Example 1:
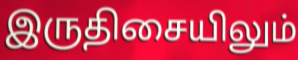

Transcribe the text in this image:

இருதிசையிலும்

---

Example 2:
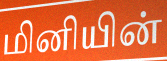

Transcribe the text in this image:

மினியின்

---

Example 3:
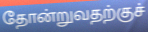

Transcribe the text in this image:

தோன்றுவதற்குச்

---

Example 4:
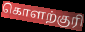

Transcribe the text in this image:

கொளற்குரி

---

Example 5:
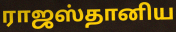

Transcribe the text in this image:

ராஜஸ்தானிய